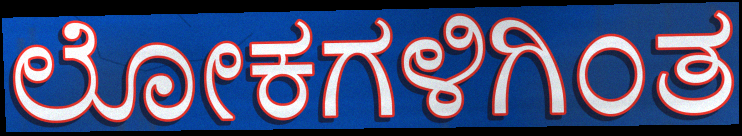
ಲೋಕಗಳಿಗಿಂತ